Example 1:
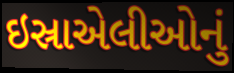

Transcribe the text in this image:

ઇસ્રાએલીઓનું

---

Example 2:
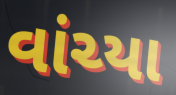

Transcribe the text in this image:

વાંચ્યા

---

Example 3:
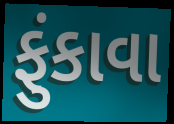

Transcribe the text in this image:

ફુંકાવા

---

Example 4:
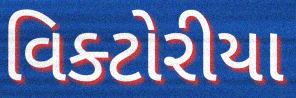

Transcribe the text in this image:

વિક્ટોરીયા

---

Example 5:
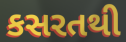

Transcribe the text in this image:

કસરતથી